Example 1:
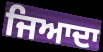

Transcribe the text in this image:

ਜਿਆਦਾ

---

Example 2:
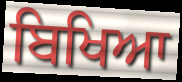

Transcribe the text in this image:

ਬਿਖਿਆ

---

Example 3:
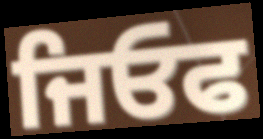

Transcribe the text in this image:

ਜਿਓਫ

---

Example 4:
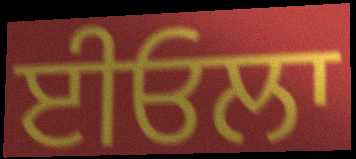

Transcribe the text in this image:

ਈਓਲਾ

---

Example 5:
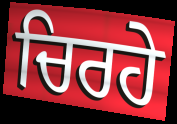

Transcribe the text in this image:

ਚਿਰਹੇ